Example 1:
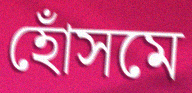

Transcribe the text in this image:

হোঁসমে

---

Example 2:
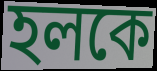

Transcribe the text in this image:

হলকে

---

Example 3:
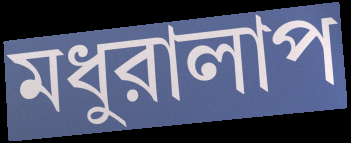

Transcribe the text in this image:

মধুরালাপ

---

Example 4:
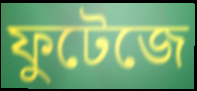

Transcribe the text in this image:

ফুটেজে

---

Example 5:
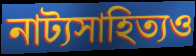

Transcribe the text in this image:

নাট্যসাহিত্যও